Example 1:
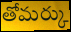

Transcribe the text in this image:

తోమర్కు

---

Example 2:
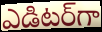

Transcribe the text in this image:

ఎడిటర్‌గా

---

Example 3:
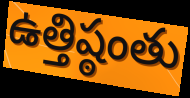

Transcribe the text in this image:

ఉత్తిష్ఠంతు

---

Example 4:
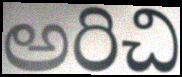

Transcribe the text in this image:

అరిచి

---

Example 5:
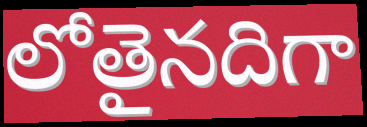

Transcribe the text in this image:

లోతైనదిగా